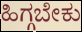
ಹಿಗ್ಗಬೇಕು